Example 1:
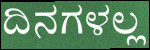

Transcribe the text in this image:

ದಿನಗಳಲ್ಲ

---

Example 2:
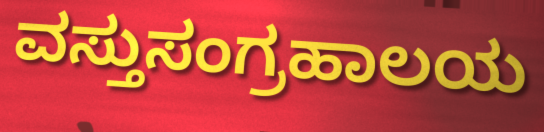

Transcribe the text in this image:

ವಸ್ತುಸಂಗ್ರಹಾಲಯ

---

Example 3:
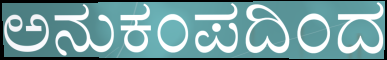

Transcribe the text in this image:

ಅನುಕಂಪದಿಂದ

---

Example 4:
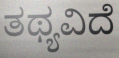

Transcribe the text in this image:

ತಥ್ಯವಿದೆ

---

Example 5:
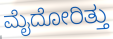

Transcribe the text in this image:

ಮೈದೋರಿತ್ತು